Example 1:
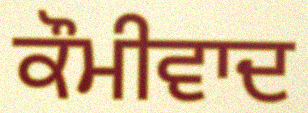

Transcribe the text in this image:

ਕੌਮੀਵਾਦ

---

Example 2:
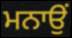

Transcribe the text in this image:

ਮਨਾਉਂ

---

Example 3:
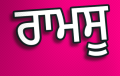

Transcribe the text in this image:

ਰਾਮਸੂ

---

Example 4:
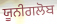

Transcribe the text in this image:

ਯੂਨੀਗਲੋਬ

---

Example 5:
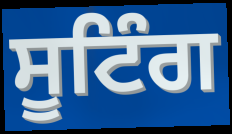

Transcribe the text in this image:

ਸੂਟਿੰਗ